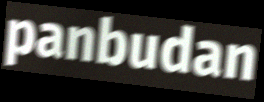
panbudan